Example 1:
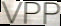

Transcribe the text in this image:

VPP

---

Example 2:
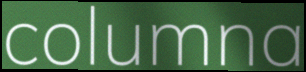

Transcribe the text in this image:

columna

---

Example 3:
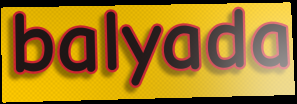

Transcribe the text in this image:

balyada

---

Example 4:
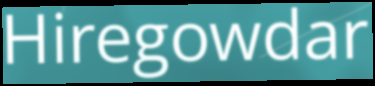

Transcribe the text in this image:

Hiregowdar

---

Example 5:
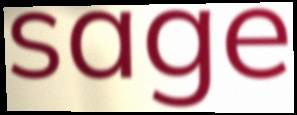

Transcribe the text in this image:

sage